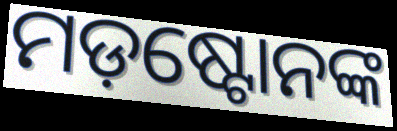
ମଡ଼ଷ୍ଟୋନଙ୍କ